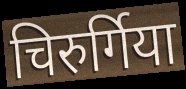
चिरुर्गिया